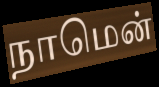
நாமென்